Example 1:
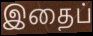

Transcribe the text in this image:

இதைப்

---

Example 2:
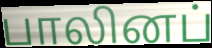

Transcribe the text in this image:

பாலினப்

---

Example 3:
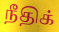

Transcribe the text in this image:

நீதிக்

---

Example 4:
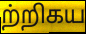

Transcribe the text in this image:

ற்றிகய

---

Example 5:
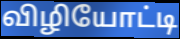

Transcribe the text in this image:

விழியோட்டி